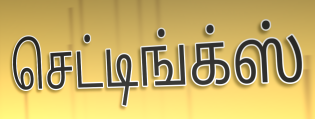
செட்டிங்க்ஸ்